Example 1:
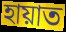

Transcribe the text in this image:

হায়াত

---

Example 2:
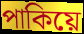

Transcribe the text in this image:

পাকিয়ে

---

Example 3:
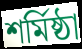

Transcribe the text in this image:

শর্মিষ্ঠা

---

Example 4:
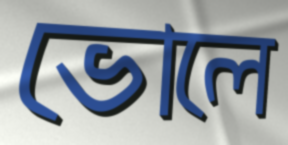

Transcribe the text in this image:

ভোলে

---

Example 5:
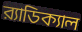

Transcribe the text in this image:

র‍্যাডিক্যাল